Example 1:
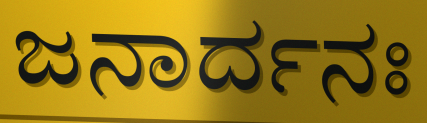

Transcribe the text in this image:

ಜನಾರ್ದನಃ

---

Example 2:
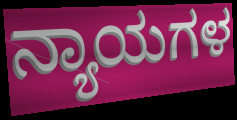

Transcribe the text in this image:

ನ್ಯಾಯಗಳ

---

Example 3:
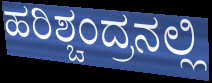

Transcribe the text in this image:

ಹರಿಶ್ಚಂದ್ರನಲ್ಲಿ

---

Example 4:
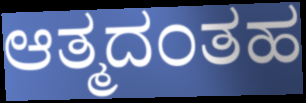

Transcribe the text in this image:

ಆತ್ಮದಂತಹ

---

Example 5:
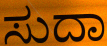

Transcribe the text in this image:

ಸುದಾ